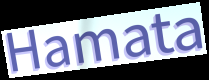
Hamata